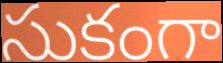
సుకంగా